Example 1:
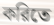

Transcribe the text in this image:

করিতে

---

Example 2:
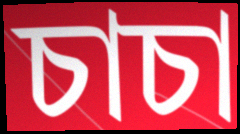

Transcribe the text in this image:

চাচা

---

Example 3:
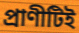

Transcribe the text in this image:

প্রাণীটিই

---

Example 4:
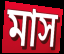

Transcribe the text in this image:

মাস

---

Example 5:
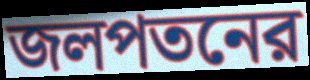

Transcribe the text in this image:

জলপতনের